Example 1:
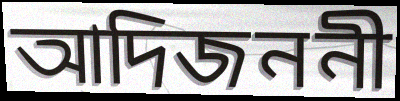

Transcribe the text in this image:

আদিজননী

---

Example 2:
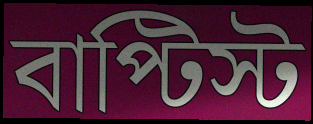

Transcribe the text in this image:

বাপ্টিস্ট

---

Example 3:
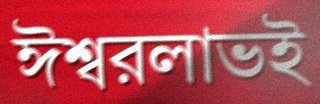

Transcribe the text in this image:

ঈশ্বরলাভই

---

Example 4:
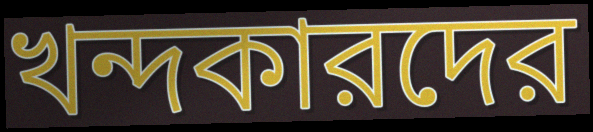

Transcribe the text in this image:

খন্দকারদের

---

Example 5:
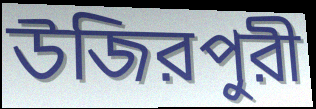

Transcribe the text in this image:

উজিরপুরী